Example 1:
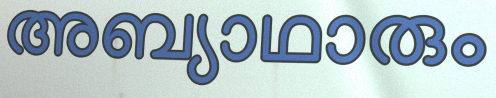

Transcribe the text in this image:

അബ്യാഥാരും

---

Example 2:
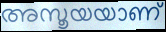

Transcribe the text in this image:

അസൂയയാണ്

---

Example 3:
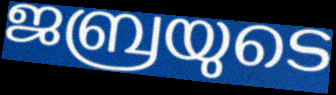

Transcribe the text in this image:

ജബ്രയുടെ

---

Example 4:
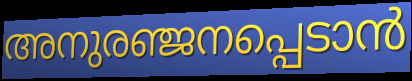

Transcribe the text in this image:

അനുരഞ്ജനപ്പെടാൻ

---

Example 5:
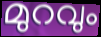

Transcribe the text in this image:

മുറവും